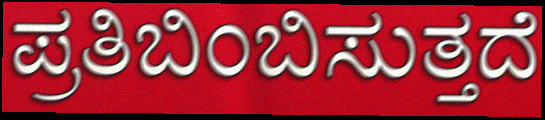
ಪ್ರತಿಬಿಂಬಿಸುತ್ತದೆ